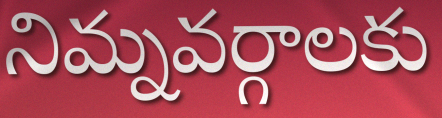
నిమ్నవర్గాలకు